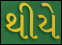
થીયે